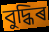
বুদ্ধিৰ